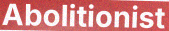
Abolitionist